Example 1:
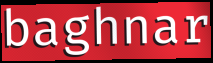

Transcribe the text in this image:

baghnar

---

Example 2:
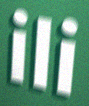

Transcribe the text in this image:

ili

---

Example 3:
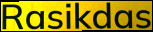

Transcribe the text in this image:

Rasikdas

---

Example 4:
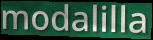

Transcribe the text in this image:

modalilla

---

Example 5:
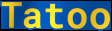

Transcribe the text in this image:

Tatoo